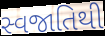
સ્વજાતિથી